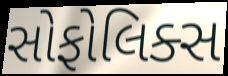
સોફોલિક્સ